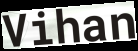
Vihan